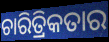
ଚାରିତ୍ରିକତାର